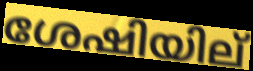
ശേഷിയില്